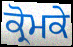
ਕ੍ਰੋਮਕੇ